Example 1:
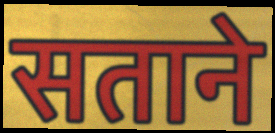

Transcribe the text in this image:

सताने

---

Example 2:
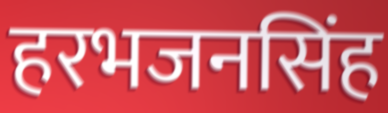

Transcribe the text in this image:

हरभजनसिंह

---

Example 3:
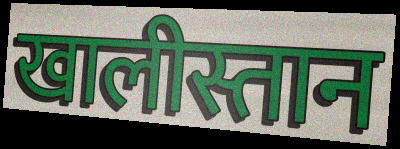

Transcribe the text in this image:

खालीस्तान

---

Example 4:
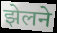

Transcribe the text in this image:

झेलने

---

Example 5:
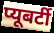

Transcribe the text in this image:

प्यूबर्टी